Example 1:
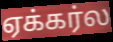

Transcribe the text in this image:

ஏக்கர்ல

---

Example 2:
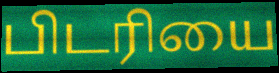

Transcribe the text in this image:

பிடரியை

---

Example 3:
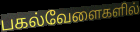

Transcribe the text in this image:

பகல்வேளைகளில்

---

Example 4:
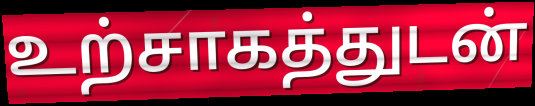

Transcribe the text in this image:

உற்சாகத்துடன்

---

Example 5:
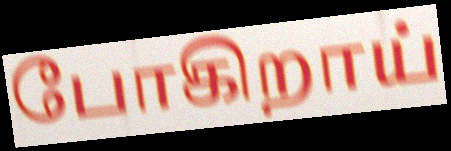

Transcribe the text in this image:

போகிறாய்